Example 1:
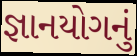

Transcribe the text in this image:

જ્ઞાનયોગનું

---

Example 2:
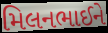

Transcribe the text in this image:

મિલનભાઈને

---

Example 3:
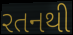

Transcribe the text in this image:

રતનથી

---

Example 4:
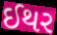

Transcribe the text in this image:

ઈથર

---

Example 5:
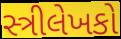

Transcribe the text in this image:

સ્ત્રીલેખકો